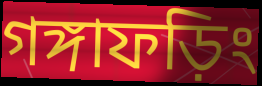
গঙ্গাফড়িং